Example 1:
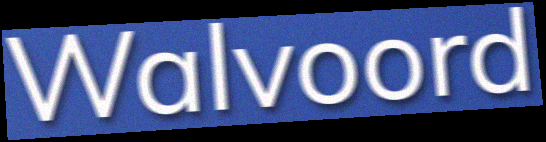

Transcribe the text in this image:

Walvoord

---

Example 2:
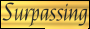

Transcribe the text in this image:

Surpassing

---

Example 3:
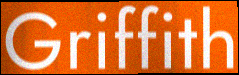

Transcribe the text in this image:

Griffith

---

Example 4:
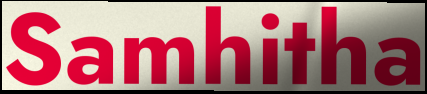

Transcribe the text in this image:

Samhitha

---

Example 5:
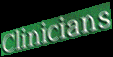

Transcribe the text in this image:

Clinicians